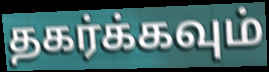
தகர்க்கவும்